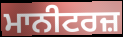
ਮਾਨੀਟਰਜ਼